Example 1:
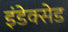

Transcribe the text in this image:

इंडेक्सेड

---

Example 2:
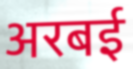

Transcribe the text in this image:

अरबई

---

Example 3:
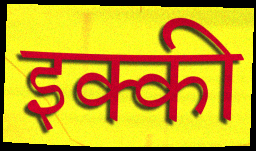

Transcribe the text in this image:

इक्की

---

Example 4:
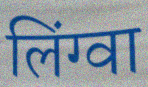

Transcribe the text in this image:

लिंग्वा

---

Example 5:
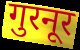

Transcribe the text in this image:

गुरनूर